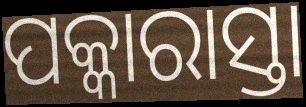
ପକ୍କାରାସ୍ତା